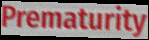
Prematurity